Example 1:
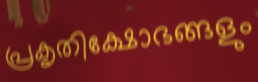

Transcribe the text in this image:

പ്രകൃതിക്ഷോഭങ്ങളും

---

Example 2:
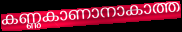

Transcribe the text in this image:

കണ്ണുകാണാനാകാത്ത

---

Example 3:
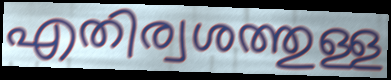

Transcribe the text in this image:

എതിര്വശത്തുള്ള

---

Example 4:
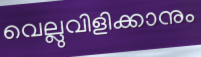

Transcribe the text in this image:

വെല്ലുവിളിക്കാനും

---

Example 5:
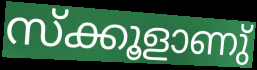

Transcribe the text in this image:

സ്ക്കൂളാണു്